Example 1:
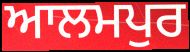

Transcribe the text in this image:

ਆਲਮਪੁਰ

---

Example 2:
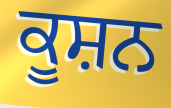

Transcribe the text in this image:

ਕੂਸ਼ਨ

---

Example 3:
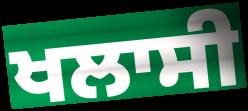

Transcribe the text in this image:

ਖਲਾਸੀ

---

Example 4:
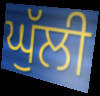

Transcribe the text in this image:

ਘੁੱਲੀ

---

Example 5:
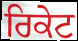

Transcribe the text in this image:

ਰਿਕੇਟ